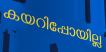
കയറിപ്പോയില്ല